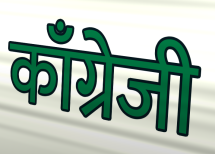
काँग्रेजी